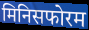
मिनिसफोरम